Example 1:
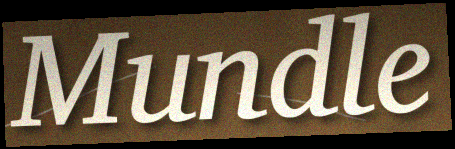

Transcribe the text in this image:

Mundle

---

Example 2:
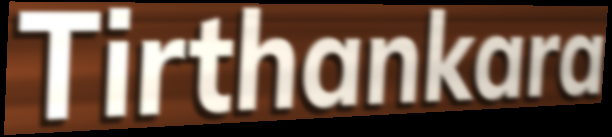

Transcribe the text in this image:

Tirthankara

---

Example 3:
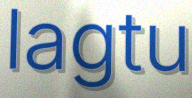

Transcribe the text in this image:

lagtu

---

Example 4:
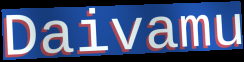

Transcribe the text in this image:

Daivamu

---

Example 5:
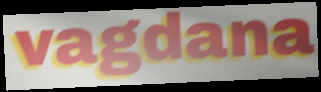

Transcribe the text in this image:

vagdana